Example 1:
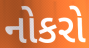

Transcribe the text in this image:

નોકરો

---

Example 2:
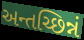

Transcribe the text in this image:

અન્તચ્છિન્નં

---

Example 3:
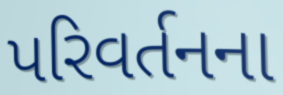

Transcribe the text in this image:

પરિવર્તનના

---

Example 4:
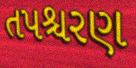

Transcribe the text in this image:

તપશ્ચરણ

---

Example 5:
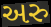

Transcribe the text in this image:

અરુ